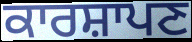
ਕਾਰਸ਼ਾਪਣ